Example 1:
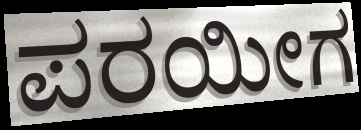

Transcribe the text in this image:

ಪರಯೀಗ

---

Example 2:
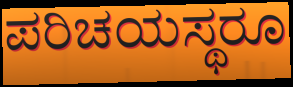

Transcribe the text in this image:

ಪರಿಚಯಸ್ಥರೂ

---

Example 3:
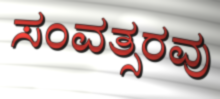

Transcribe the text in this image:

ಸಂವತ್ಸರವು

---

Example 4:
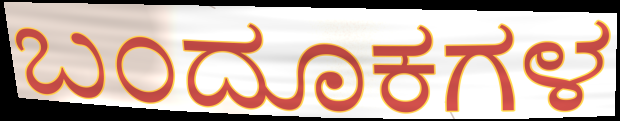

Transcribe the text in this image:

ಬಂದೂಕಗಳ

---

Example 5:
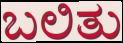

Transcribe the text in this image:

ಬಲಿತು